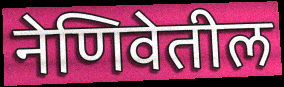
नेणिवेतील